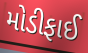
મોડીફાઈ